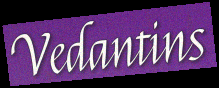
Vedantins